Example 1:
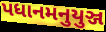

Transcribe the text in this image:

પધાનમનુયુઞ્જ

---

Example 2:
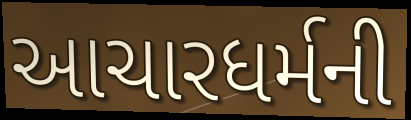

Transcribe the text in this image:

આચારધર્મની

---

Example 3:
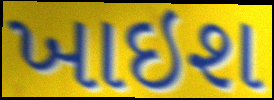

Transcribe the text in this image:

ખાઇશ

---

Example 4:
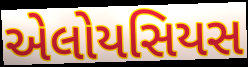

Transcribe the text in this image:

એલોયસિયસ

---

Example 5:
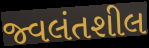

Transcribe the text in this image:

જ્વલંતશીલ